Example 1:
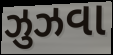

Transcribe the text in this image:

ઝુઝવા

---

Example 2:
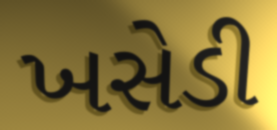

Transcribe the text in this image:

ખસેડી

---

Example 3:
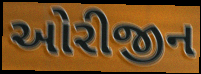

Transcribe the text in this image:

ઓરીજીન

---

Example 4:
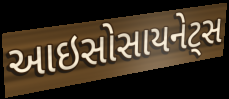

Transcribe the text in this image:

આઇસોસાયનેટ્સ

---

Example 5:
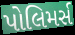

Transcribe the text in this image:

પોલિમર્સ